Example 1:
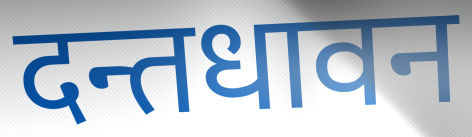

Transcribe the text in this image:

दन्तधावन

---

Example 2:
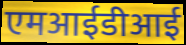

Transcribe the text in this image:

एमआईडीआई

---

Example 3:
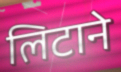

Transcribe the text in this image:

लिटाने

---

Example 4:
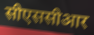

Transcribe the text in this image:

सीएससीआर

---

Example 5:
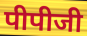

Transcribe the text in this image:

पीपीजी